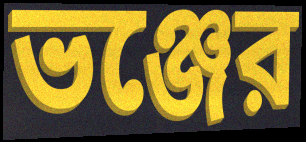
ভঞ্জের